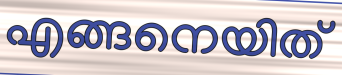
എങ്ങനെയിത്